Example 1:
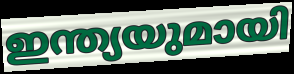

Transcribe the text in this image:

ഇന്ത്യയുമായി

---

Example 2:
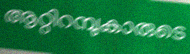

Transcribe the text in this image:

ആറ്റിറമ്പുകാരുടെ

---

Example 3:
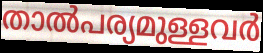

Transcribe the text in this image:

താൽപര്യമുള്ളവർ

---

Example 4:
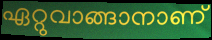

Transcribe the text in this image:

ഏറ്റുവാങ്ങാനാണ്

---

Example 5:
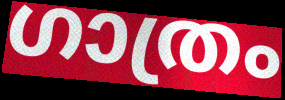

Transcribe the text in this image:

ഗാത്രം